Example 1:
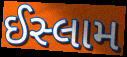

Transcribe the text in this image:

ઈસ્લામ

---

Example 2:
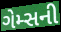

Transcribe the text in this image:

ગેમ્સની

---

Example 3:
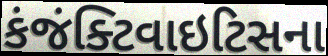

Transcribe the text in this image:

કંજંક્ટિવાઇટિસના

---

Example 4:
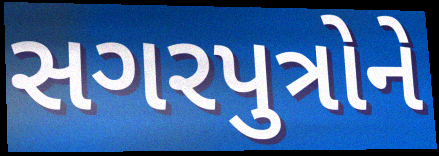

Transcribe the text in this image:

સગરપુત્રોને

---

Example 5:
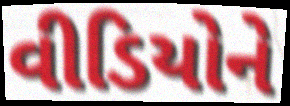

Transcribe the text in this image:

વીડિયોને